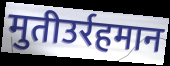
मुतीउर्रहमान